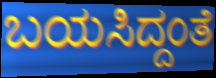
ಬಯಸಿದ್ದಂತೆ